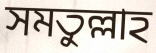
সমতুল্লাহ